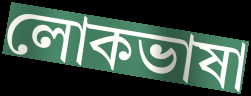
লোকভাষা